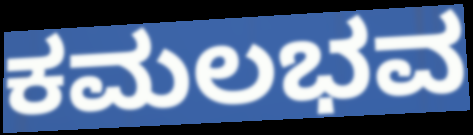
ಕಮಲಭವ